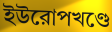
ইউরোপখণ্ডে